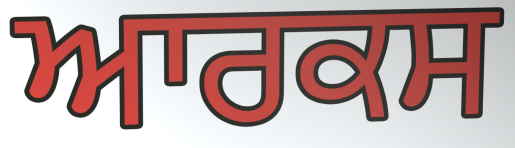
ਆਰਕਸ